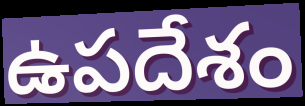
ఉపదేశం